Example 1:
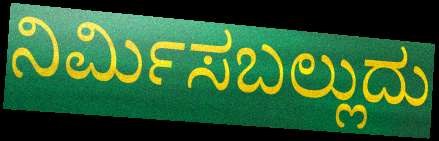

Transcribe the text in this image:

ನಿರ್ಮಿಸಬಲ್ಲುದು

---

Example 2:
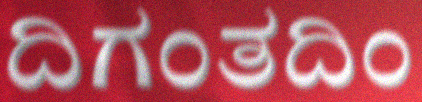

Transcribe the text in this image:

ದಿಗಂತದಿಂ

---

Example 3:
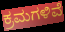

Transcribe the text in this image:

ಕ್ರಮಗಳಿವೆ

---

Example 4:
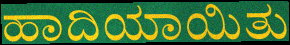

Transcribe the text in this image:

ಹಾದಿಯಾಯಿತು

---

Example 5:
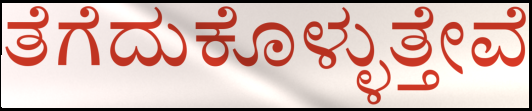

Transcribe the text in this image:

ತೆಗೆದುಕೊಳ್ಳುತ್ತೇವೆ